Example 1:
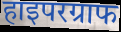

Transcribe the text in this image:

हाइपरग्राफ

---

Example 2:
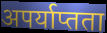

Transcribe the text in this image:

अपर्याप्‍तता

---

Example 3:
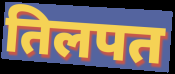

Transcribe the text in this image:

तिलपत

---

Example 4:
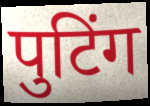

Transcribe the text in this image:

पुटिंग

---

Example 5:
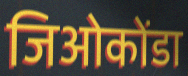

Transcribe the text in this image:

जिओकोंडा